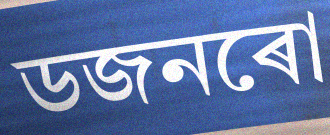
ডজনৰো